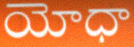
యోధా